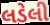
લડેલી